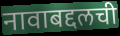
नावाबद्दलची